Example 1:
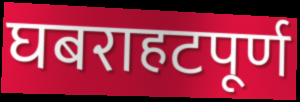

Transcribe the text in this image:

घबराहटपूर्ण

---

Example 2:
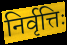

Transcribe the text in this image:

निर्वृत्तिः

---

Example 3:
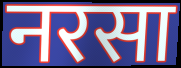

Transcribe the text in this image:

नरसा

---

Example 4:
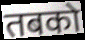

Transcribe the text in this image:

तबको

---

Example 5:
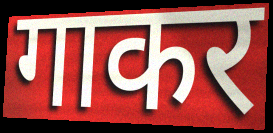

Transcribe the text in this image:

गाकर